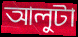
আলুটা